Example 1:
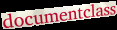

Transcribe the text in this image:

documentclass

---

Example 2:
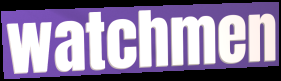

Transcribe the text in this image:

watchmen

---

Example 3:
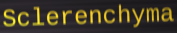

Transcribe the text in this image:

Sclerenchyma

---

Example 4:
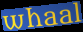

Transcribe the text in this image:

whaal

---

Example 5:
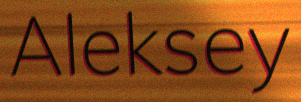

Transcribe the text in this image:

Aleksey